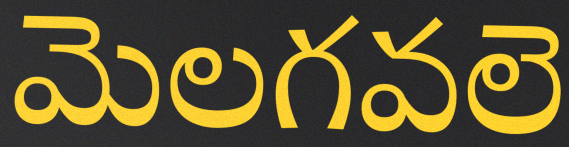
మెలగవలె